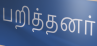
பறித்தனர்